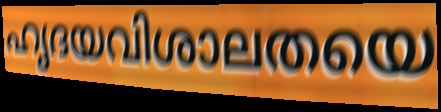
ഹൃദയവിശാലതയെ